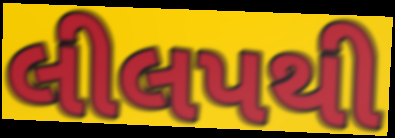
લીલપથી